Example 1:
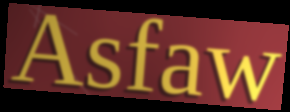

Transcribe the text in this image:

Asfaw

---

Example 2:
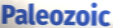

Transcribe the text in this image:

Paleozoic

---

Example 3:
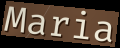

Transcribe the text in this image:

Maria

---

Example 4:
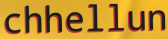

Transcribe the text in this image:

chhellun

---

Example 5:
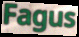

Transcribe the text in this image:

Fagus